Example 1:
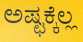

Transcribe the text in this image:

ಅಷ್ಟಕ್ಕೆಲ್ಲ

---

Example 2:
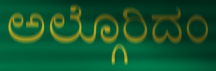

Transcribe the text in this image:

ಅಲ್ಗೊರಿದಂ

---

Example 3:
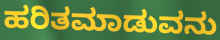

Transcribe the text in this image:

ಹರಿತಮಾಡುವನು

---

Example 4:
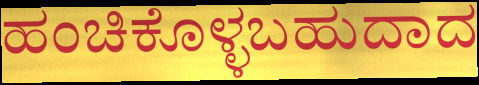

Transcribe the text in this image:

ಹಂಚಿಕೊಳ್ಳಬಹುದಾದ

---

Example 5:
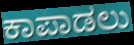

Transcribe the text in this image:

ಕಾಪಾಡಲು